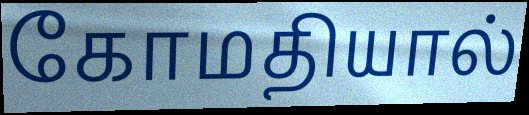
கோமதியால்